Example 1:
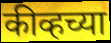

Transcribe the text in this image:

कीव्हच्या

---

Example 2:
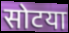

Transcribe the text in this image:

सोटया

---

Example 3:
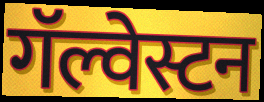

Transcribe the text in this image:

गॅल्वेस्टन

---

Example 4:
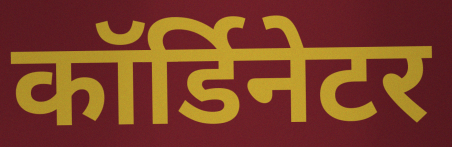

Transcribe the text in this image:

कॉर्डिनेटर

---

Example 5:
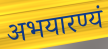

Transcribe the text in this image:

अभयारण्यं